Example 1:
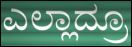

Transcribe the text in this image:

ಎಲ್ಲಾದ್ರೂ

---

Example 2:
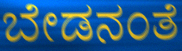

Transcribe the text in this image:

ಬೇಡನಂತೆ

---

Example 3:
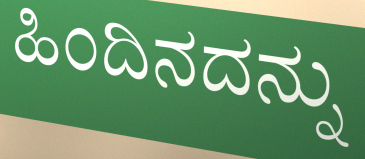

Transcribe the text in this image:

ಹಿಂದಿನದನ್ನು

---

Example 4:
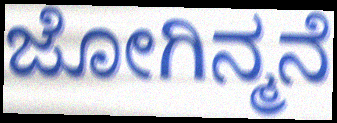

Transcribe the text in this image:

ಜೋಗಿನ್ಮನೆ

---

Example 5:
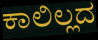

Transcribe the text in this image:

ಕಾಲಿಲ್ಲದ